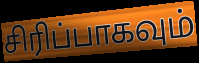
சிரிப்பாகவும்